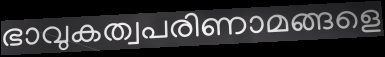
ഭാവുകത്വപരിണാമങ്ങളെ